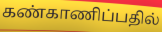
கண்காணிப்பதில்